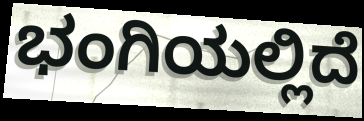
ಭಂಗಿಯಲ್ಲಿದೆ